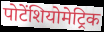
पोटेंशियोमेट्रिक